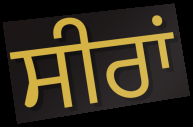
ਸੀਰਾਂ